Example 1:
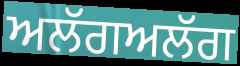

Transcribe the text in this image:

ਅਲੱਗਅਲੱਗ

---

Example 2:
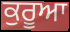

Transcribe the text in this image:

ਕੁਰੂਆ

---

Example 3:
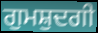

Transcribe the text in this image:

ਗੁਮਸ਼ੁਦਗੀ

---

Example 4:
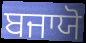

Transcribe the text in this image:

ਬਜਾਯੋ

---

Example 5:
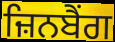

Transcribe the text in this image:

ਜ਼ਿਨਬੈਂਗ